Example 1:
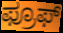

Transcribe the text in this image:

ಫ್ರೂಫ್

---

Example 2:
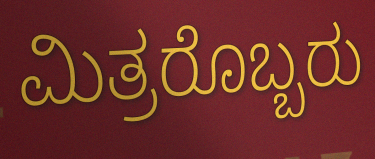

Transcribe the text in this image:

ಮಿತ್ರರೊಬ್ಬರು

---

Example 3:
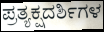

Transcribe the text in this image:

ಪ್ರತ್ಯಕ್ಷದರ್ಶಿಗಳ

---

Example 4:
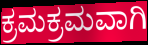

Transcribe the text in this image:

ಕ್ರಮಕ್ರಮವಾಗಿ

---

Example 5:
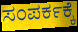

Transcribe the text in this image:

ಸಂಪರ್ಕಕ್ಕೆ